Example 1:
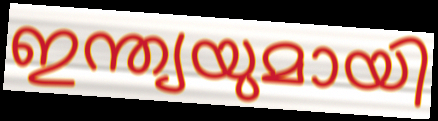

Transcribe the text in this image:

ഇന്ത്യയുമായി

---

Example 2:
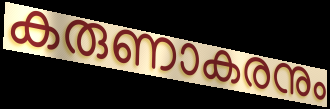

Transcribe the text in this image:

കരുണാകരനും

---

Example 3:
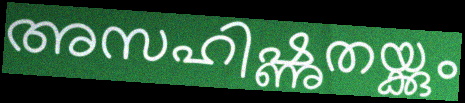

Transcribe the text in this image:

അസഹിഷ്ണുതയ്ക്കും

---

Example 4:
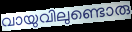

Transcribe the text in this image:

വായുവിലുണ്ടൊരു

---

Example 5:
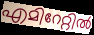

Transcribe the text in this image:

എമിറേറ്റിൽ